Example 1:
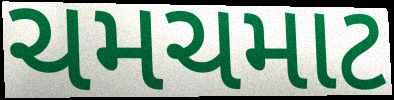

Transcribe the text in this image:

ચમચમાટ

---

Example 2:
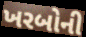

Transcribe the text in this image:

ખરબોની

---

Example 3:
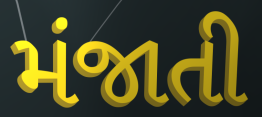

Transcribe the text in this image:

મંજાતી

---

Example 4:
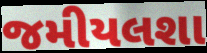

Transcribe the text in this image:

જમીયલશા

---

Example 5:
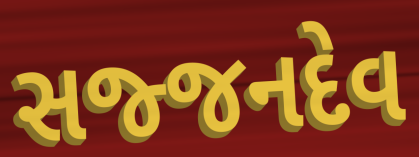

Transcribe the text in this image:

સજ્જનદેવ